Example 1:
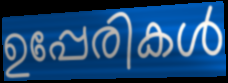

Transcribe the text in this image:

ഉപ്പേരികൾ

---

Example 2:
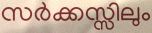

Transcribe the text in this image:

സർക്കസ്സിലും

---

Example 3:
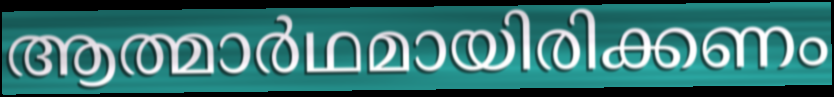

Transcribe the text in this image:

ആത്മാർഥമായിരിക്കണം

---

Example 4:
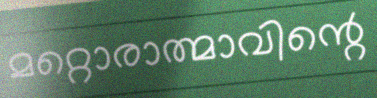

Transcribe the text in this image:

മറ്റൊരാത്മാവിന്റെ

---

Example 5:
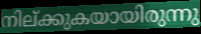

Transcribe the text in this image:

നില്ക്കുകയായിരുന്നു